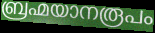
ബ്രഹ്മയാനരൂപം